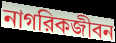
নাগরিকজীবন